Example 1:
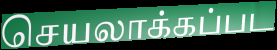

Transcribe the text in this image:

செயலாக்கப்பட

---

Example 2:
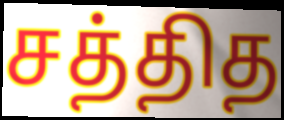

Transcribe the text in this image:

சத்தித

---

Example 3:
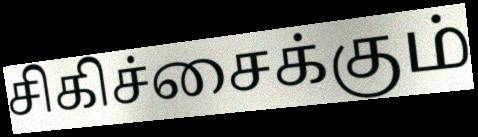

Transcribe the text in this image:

சிகிச்சைக்கும்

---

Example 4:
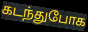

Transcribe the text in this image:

கடந்துபோக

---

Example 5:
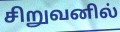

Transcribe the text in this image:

சிறுவனில்